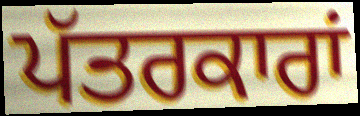
ਪੱਤਰਕਾਰਾਂ